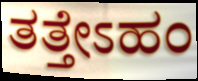
ತತ್ತೇಽಹಂ